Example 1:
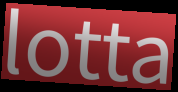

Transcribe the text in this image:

lotta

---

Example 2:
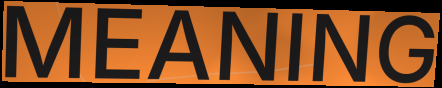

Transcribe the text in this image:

MEANING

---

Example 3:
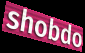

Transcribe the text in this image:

shobdo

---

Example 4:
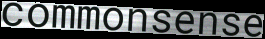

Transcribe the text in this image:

commonsense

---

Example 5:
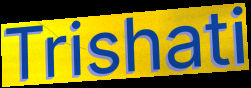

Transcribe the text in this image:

Trishati